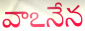
వాఽనేన